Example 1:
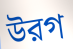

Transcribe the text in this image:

উরগ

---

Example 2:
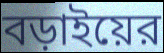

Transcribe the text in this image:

বড়াইয়ের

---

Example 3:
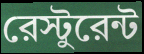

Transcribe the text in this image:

রেস্টুরেন্ট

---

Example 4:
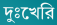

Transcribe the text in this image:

দুঃখেরি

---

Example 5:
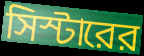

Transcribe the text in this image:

সিস্টারের